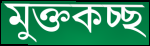
মুক্তকচ্ছ